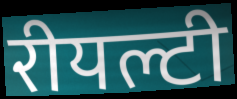
रीयल्टी